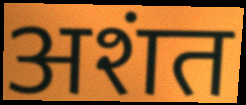
अशंत